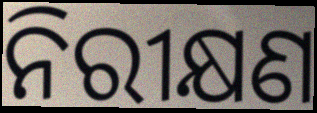
ନିରୀକ୍ଷଣ